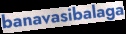
banavasibalaga